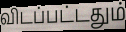
விடப்பட்டதும்